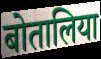
बोतालिया